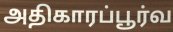
அதிகாரப்பூர்வ